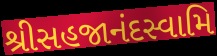
શ્રીસહજાનંદસ્વામિ